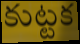
కుట్టక